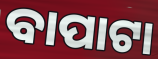
ବାପାଟା